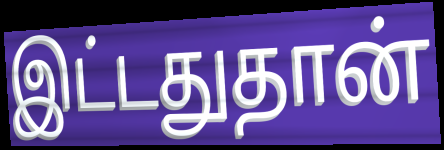
இட்டதுதான்